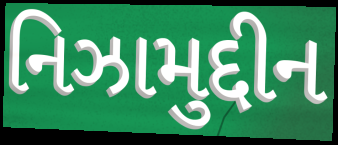
નિઝામુદ્દીન